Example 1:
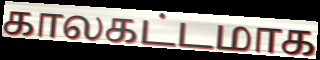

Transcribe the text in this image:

காலகட்டமாக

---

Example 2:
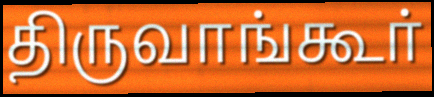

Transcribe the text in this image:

திருவாங்கூர்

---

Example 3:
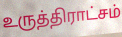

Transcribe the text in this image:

உருத்திராட்சம்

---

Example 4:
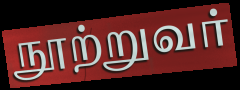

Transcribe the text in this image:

நூற்றுவர்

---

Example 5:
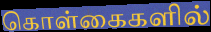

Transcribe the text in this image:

கொள்கைகளில்